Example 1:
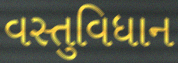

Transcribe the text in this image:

વસ્તુવિધાન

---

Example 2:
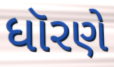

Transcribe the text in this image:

ધૉરણે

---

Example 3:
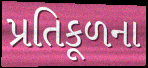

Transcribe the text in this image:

પ્રતિકૂળના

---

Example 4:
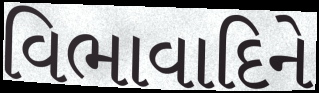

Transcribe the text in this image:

વિભાવાદિને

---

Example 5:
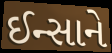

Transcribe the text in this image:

ઈન્સાને